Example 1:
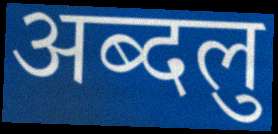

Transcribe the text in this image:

अब्दलु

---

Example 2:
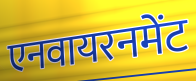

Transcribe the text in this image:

एनवायरनमेंट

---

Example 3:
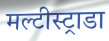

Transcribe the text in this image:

मल्टीस्ट्राडा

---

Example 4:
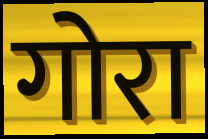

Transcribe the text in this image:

गोरा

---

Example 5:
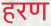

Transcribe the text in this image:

हरण